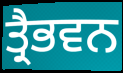
ਤ੍ਰੈਭਵਨ